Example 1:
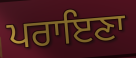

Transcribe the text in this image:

ਪਰਾਇਣਾ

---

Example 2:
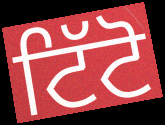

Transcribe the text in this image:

ਟਿੱਟੋ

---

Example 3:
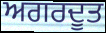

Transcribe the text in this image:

ਅਗਰਦੂਤ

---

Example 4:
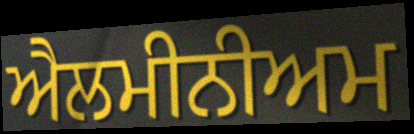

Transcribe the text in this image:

ਐਲਮੀਨੀਅਮ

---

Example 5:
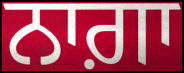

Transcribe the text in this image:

ਨਾਗ਼ਾ